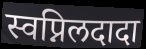
स्वप्निलदादा